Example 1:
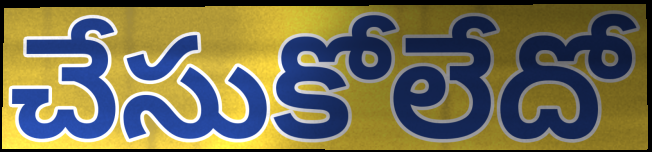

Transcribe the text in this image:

చేసుకోలేదో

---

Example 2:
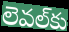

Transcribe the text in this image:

లెవల్‌కు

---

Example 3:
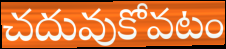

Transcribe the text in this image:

చదువుకోవటం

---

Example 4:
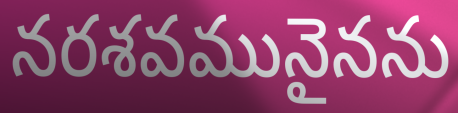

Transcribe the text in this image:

నరశవమునైనను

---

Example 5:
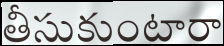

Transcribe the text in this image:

తీసుకుంటారా